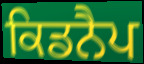
ਕਿਡਨੈਪ